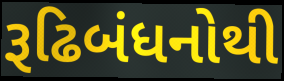
રૂઢિબંધનોથી